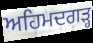
ਅਹਿਮਦਗੜ੍ਹ